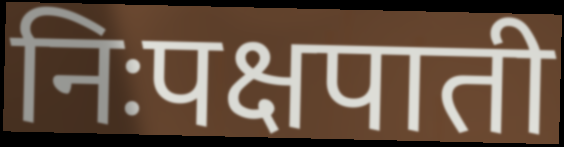
निःपक्षपाती